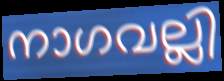
നാഗവല്ലി